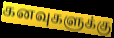
கனவுகளுக்கு